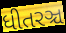
ધીતરઞ્ચ